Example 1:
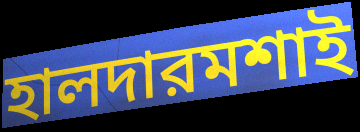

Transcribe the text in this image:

হালদারমশাই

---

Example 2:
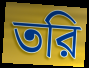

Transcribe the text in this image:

তরি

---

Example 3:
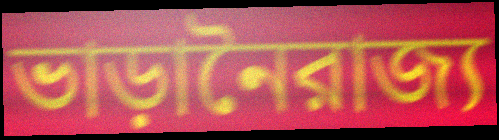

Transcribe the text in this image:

ভাড়ানৈরাজ্য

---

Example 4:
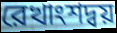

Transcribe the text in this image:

রেখাংশদ্বয়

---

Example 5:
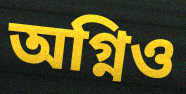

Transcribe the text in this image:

অগ্নিও